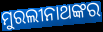
ମୁରଲୀନାଥଙ୍କର